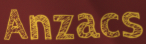
Anzacs